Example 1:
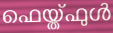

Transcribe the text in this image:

ഫെയ്ത്ഫുൾ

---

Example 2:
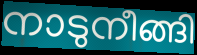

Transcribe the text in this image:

നാടുനീങ്ങി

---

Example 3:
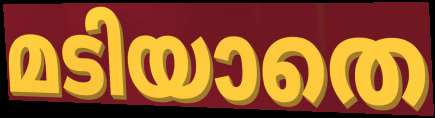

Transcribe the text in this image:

മടിയാതെ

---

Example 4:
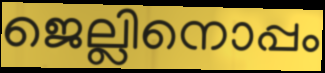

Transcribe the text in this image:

ജെല്ലിനൊപ്പം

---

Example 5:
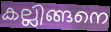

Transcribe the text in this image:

കല്ലിങ്ങനെ